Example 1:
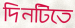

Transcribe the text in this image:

দিনটিতে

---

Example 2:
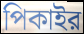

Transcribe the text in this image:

পিকাইর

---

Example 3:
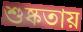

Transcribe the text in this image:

শুষ্কতায়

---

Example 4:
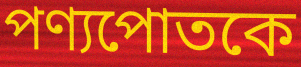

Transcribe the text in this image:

পণ্যপোতকে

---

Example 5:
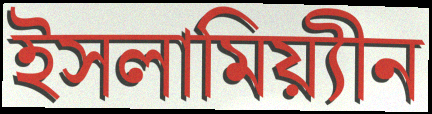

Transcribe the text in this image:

ইসলামিয়্যীন